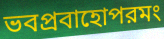
ভবপ্রবাহোপরমং